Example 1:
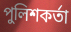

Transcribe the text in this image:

পুলিশকর্তা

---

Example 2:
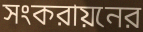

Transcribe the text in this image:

সংকরায়নের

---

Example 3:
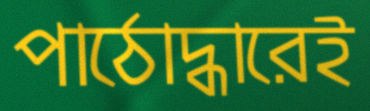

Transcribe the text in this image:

পাঠোদ্ধারেই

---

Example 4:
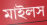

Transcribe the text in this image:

মাইলস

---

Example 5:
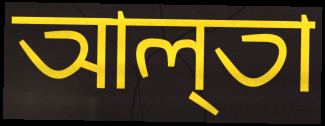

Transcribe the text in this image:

আল্‌তা